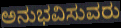
ಅನುಭವಿಸುವರು